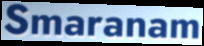
Smaranam